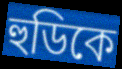
হুডিকে